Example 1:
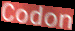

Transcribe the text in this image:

Codon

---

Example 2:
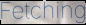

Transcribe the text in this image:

Fetching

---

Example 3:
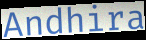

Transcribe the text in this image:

Andhira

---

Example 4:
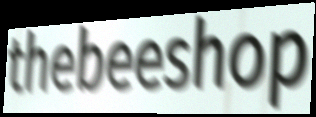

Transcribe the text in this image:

thebeeshop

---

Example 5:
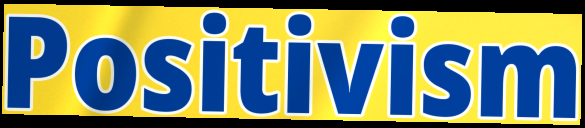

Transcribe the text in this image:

Positivism